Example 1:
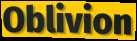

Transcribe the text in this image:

Oblivion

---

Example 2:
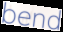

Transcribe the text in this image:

bend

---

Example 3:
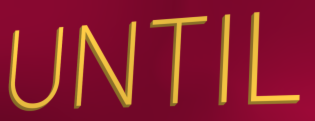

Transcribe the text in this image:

UNTIL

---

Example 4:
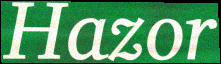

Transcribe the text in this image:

Hazor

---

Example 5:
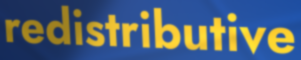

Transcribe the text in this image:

redistributive